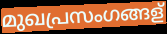
മുഖപ്രസംഗങ്ങള്